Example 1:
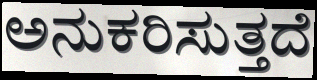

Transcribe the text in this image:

ಅನುಕರಿಸುತ್ತದೆ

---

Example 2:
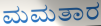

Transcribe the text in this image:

ಮಮತಾರ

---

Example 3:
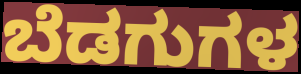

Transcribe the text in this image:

ಬೆಡಗುಗಳ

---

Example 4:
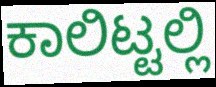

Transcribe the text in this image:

ಕಾಲಿಟ್ಟಲ್ಲಿ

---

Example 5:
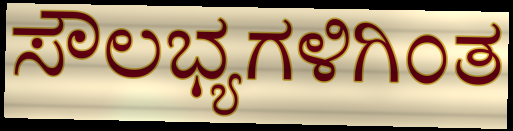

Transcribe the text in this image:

ಸೌಲಭ್ಯಗಳಿಗಿಂತ